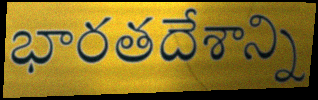
భారతదేశాన్ని